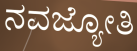
ನವಜ್ಯೋತಿ